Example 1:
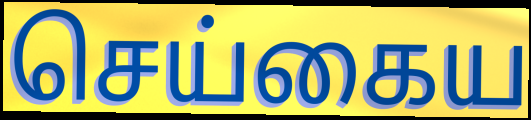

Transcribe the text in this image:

செய்கைய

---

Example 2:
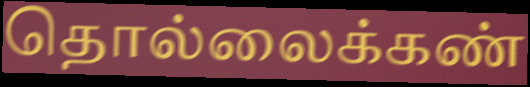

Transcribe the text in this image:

தொல்லைக்கண்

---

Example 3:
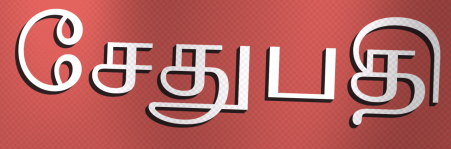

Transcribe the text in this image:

சேதுபதி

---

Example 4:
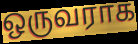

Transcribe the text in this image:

ஒருவராக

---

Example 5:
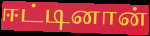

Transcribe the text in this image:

ஈட்டினான்